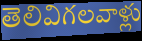
తెలివిగలవాళ్లు